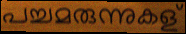
പച്ചമരുന്നുകള്